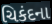
ચિકંદના